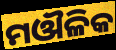
ମଔଳିକ